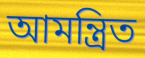
আমন্ত্ৰিত